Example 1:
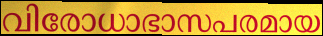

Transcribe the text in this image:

വിരോധാഭാസപരമായ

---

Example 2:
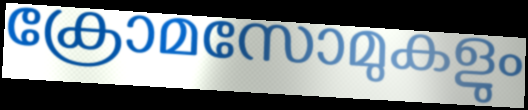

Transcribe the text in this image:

ക്രോമസോമുകളും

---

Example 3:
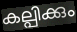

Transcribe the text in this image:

കല്പിക്കും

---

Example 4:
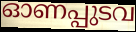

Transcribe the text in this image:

ഓണപ്പുടവ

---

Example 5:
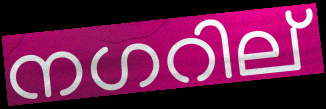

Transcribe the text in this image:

നഗറില്